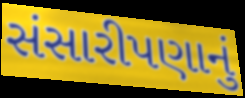
સંસારીપણાનું